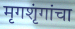
मृगशृंगांचा